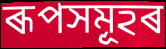
ৰূপসমূহৰ